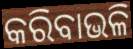
କରିବାଭଳି